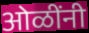
ओळींनी